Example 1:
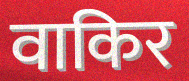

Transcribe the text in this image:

वाकिर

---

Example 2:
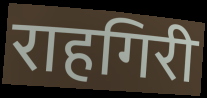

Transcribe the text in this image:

राहगिरी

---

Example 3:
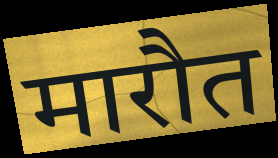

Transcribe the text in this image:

मारौत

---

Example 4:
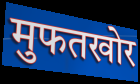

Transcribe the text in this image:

मुफतखोर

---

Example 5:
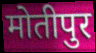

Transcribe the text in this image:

मोतीपुर